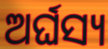
ଅର୍ଘସ୍ୟ